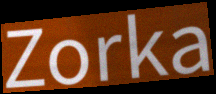
Zorka